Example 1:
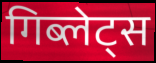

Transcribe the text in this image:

गिब्लेट्स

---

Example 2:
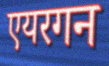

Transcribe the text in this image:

एयरगन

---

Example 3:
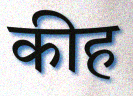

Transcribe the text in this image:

कीह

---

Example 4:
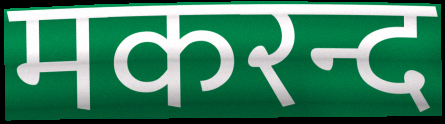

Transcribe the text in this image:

मकरन्द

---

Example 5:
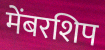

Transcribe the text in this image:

मेंबरशिप